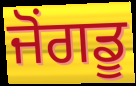
ਜੋਂਗਡੂ